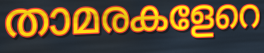
താമരകളേറെ